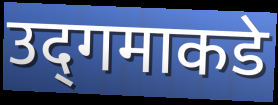
उद्‌गमाकडे